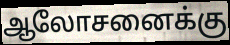
ஆலோசனைக்கு